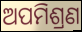
ଅପମିଶ୍ରଣ